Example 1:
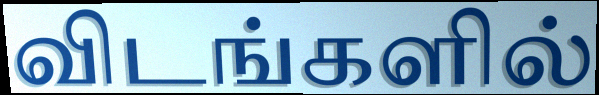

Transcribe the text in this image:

விடங்களில்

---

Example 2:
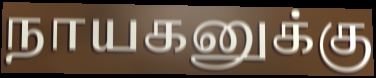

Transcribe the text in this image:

நாயகனுக்கு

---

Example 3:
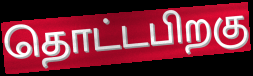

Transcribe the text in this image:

தொட்டபிறகு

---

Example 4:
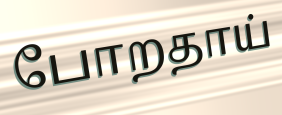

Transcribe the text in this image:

போறதாய்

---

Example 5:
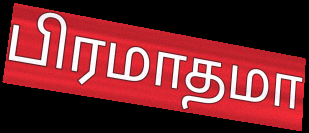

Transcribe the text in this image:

பிரமாதமா